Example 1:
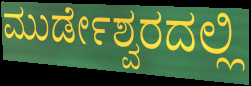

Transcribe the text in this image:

ಮುರ್ಡೇಶ್ವರದಲ್ಲಿ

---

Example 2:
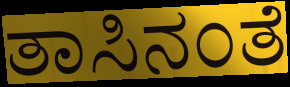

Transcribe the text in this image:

ತಾಸಿನಂತೆ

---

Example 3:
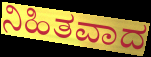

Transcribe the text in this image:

ನಿಹಿತವಾದ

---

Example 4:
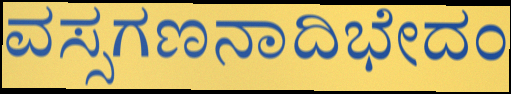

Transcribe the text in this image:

ವಸ್ಸಗಣನಾದಿಭೇದಂ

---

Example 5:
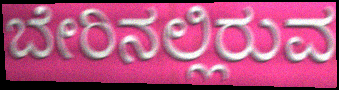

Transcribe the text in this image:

ಬೇರಿನಲ್ಲಿರುವ